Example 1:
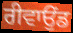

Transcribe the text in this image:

ਰੀਵਾਉਂਡ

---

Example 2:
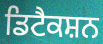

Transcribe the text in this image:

ਡਿਟੈਕਸ਼ਨ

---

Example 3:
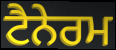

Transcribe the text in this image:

ਟੈਨੇਰਮ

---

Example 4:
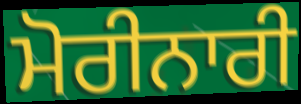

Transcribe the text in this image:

ਮੋਰੀਨਾਰੀ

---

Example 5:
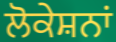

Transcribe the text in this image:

ਲੋਕੇਸ਼ਨਾਂ